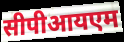
सीपीआयएम